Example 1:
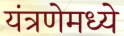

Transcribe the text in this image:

यंत्रणेमध्ये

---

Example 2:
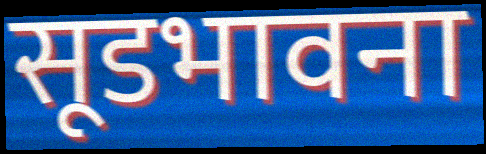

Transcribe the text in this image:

सूडभावना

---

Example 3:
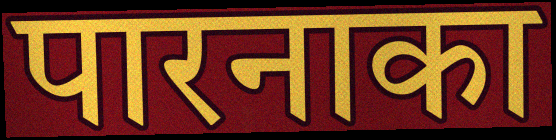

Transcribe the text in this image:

पारनाका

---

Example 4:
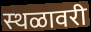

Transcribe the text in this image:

स्थळावरी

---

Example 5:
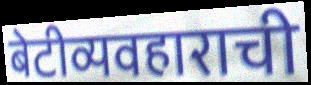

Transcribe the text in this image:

बेटीव्यवहाराची